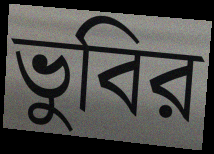
ভুবির